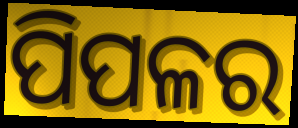
ପିପଳର